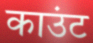
काउंट